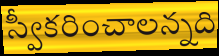
స్వీకరించాలన్నది